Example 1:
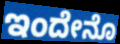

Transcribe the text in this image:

ಇಂದೇನೊ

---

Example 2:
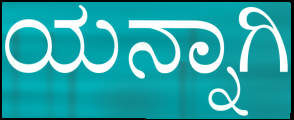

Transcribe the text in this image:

ಯನ್ನಾಗಿ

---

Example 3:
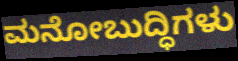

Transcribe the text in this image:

ಮನೋಬುದ್ಧಿಗಳು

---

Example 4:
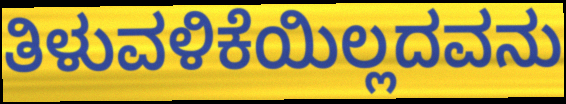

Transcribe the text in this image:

ತಿಳುವಳಿಕೆಯಿಲ್ಲದವನು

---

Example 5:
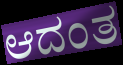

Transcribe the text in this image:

ಆದಂತ